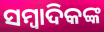
ସମ୍ୱାଦିକଙ୍କ